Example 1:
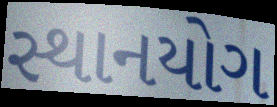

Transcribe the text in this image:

સ્થાનયોગ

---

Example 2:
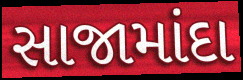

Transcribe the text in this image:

સાજામાંદા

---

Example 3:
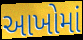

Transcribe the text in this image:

આખોમાં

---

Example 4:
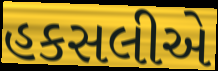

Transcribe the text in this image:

હકસલીએ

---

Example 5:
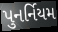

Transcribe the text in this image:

પુનર્નિયમ